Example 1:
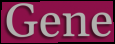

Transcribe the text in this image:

Gene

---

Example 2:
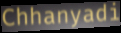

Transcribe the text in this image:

Chhanyadi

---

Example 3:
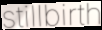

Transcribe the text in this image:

stillbirth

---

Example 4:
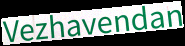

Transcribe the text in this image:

Vezhavendan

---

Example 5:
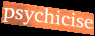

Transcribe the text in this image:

psychicise